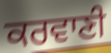
ਕਰਵਾਣੀ